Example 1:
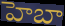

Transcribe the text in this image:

హెబా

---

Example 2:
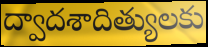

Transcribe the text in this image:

ద్వాదశాదిత్యులకు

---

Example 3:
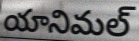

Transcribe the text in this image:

యానిమల్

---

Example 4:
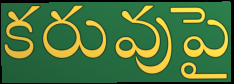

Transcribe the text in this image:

కరువుపై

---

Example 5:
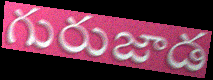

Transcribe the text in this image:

గురుజాడ